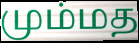
மும்மத